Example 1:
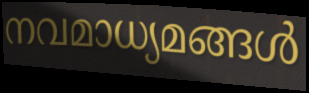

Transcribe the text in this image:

നവമാധ്യമങ്ങൾ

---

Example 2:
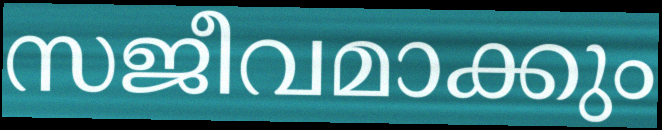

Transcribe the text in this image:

സജീവമാക്കും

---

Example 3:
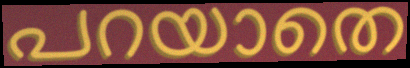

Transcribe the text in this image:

പറയാതെ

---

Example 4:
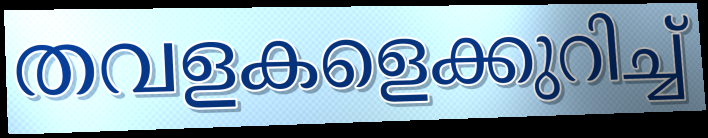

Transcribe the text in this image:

തവളകളെക്കുറിച്ച്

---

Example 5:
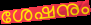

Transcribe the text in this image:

ശേഷനും